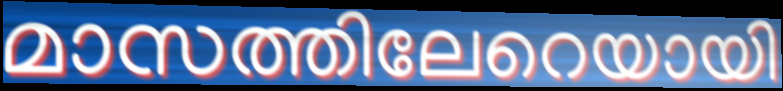
മാസത്തിലേറെയായി